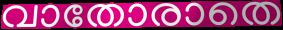
വാതോരാതെ